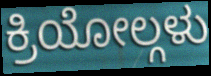
ಕ್ರಿಯೋಲ್ಗಳು